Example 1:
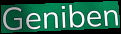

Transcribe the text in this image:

Geniben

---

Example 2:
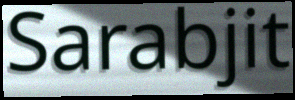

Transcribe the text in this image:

Sarabjit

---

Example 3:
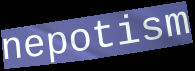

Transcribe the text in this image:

nepotism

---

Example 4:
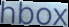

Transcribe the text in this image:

hbox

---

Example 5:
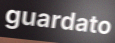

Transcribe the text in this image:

guardato